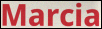
Marcia